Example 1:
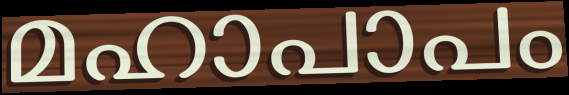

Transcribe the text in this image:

മഹാപാപം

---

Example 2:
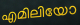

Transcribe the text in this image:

എമിലിയോ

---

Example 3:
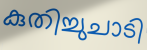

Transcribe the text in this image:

കുതിച്ചുചാടി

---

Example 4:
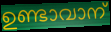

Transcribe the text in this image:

ഉണ്ടാവാന്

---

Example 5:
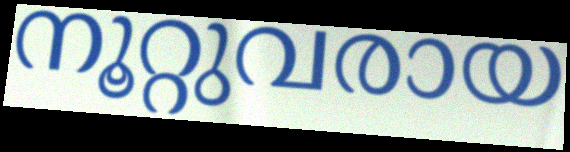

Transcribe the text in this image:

നൂറ്റുവരായ